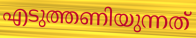
എടുത്തണിയുന്നത്